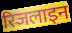
रिजलाइन